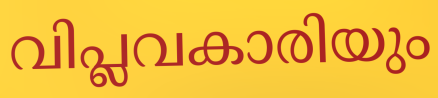
വിപ്ലവകാരിയും